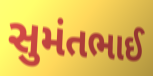
સુમંતભાઈ